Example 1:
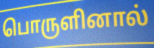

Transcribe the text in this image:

பொருளினால்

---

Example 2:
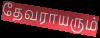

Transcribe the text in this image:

தேவராயரும்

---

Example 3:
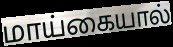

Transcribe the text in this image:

மாய்கையால்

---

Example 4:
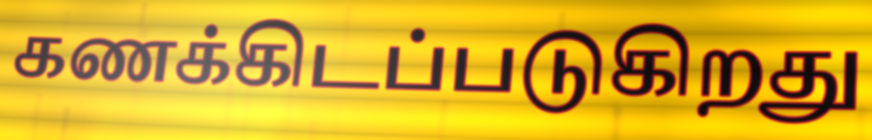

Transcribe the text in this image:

கணக்கிடப்படுகிறது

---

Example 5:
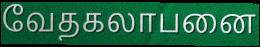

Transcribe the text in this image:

வேதகலாபனை